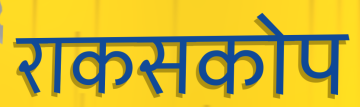
राकसकोप